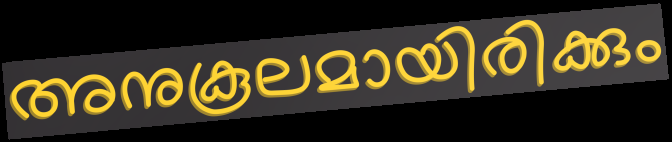
അനുകൂലമായിരിക്കും